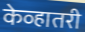
केव्हातरी